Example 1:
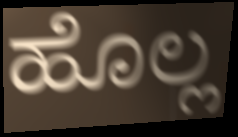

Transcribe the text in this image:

ಹೊಲ್ಲ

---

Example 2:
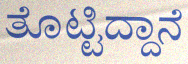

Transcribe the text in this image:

ತೊಟ್ಟಿದ್ದಾನೆ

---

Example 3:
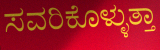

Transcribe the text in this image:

ಸವರಿಕೊಳ್ಳುತ್ತಾ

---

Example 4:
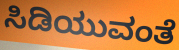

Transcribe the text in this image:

ಸಿಡಿಯುವಂತೆ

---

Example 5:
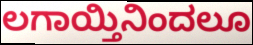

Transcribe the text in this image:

ಲಗಾಯ್ತಿನಿಂದಲೂ